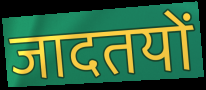
जादतयों